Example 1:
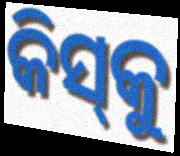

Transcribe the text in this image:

କିସ୍‌କୁ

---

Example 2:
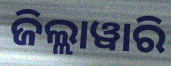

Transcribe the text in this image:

ଜିଲ୍ଲାୱାରି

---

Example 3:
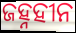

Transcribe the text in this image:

ଜହ୍ନହୀନ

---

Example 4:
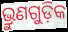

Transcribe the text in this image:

ଭ୍ରୁଣଗୁଡ଼ିକ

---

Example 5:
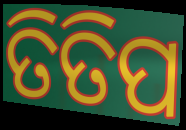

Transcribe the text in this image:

ତିତିପ